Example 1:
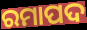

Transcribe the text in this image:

ରମାପଦ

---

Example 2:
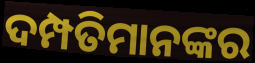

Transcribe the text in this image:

ଦମ୍ପତିମାନଙ୍କର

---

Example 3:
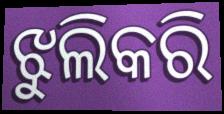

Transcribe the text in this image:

ଝୁଲିକରି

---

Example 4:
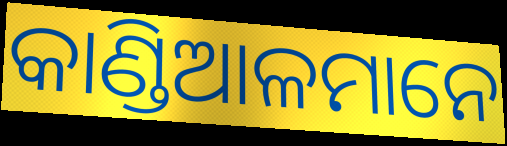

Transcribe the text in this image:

କାଣ୍ଡିଆଳମାନେ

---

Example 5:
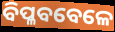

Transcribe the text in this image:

ବିପ୍ଳବବେଳେ